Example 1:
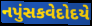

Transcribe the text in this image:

નપુંસકવેદોદયે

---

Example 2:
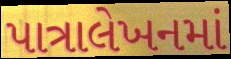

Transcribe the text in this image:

પાત્રાલેખનમાં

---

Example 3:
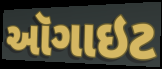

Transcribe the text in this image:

ઑગાઇટ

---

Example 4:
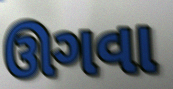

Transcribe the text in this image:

ઊગવા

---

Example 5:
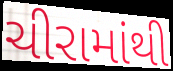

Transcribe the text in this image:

ચીરામાંથી